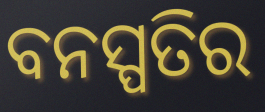
ବନସ୍ପତିର